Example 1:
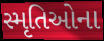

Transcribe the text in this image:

સ્મૃતિઓના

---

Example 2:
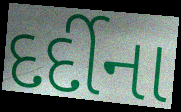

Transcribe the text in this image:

દર્દીના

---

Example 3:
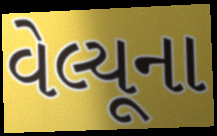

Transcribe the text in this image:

વેલ્યૂના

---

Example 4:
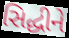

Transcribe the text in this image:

સિદ્ધીને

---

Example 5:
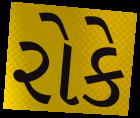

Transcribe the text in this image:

રોકે